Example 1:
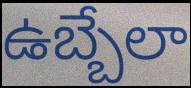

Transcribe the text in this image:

ఉబ్బేలా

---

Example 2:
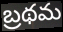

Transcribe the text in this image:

బ్రథమ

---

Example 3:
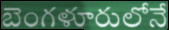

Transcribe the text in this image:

బెంగళూరులోనే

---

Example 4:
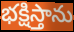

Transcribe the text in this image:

భక్షిస్తాను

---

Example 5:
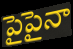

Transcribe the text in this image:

పైపైనా